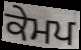
ਕੇਮਪ